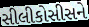
સીલીકોસીસને